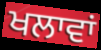
ਖਲਾਵਾਂ